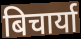
बिचार्या